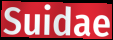
Suidae